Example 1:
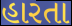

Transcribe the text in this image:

હારતા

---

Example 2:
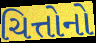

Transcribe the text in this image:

ચિત્તોનો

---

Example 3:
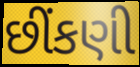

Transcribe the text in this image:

છીંકણી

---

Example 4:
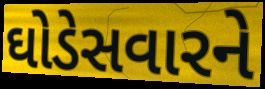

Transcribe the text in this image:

ઘોડેસવારને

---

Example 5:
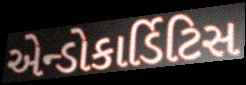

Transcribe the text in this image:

એન્ડોકાર્ડિટિસ